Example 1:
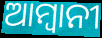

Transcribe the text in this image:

ଆମ୍ବାନୀ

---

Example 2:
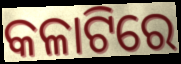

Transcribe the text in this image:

କଳାଟିରେ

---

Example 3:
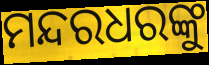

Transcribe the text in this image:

ମନ୍ଦରଧରଙ୍କୁ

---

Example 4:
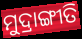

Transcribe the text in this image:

ମୁଦ୍ରାଙ୍ଗୀତି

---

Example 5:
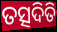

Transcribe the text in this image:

ତତ୍ସଦିତି